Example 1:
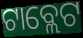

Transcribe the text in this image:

ଟାବ୍ଲେଟ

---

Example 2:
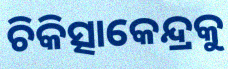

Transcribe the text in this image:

ଚିକିତ୍ସାକେନ୍ଦ୍ରକୁ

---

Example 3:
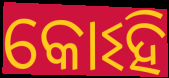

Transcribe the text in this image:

କୋଽହି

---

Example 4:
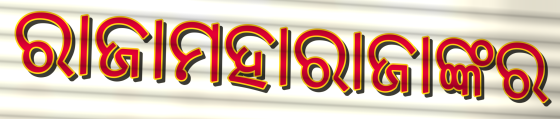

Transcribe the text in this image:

ରାଜାମହାରାଜାଙ୍କର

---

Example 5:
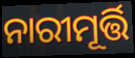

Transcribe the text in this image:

ନାରୀମୂର୍ତ୍ତି